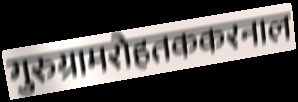
गुरुग्रामरोहतककरनाल